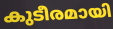
കുടീരമായി